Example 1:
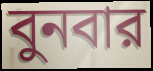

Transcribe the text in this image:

বুনবার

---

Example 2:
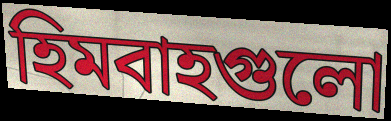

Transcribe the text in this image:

হিমবাহগুলো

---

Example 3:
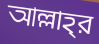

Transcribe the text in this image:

আল্লাহ্‌র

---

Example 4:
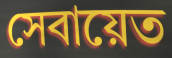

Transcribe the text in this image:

সেবায়েত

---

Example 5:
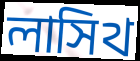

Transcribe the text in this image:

লাসিথ